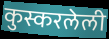
कुस्करलेली